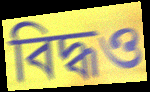
বিদ্ধও